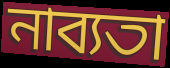
নাব্যতা